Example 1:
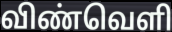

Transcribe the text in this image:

விண்வெளி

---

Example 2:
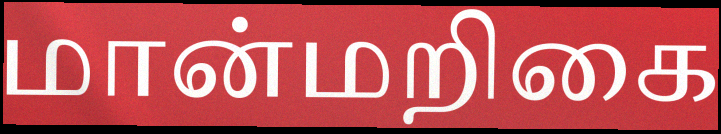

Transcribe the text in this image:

மான்மறிகை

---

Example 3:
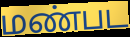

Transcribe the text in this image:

மண்பட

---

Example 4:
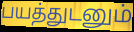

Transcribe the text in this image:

பயத்துடனும்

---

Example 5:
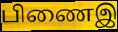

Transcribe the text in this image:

பிணைஇ